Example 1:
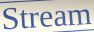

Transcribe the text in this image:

Stream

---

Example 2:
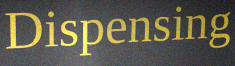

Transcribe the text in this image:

Dispensing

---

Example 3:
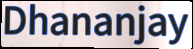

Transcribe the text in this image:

Dhananjay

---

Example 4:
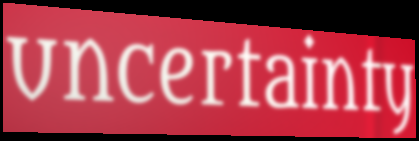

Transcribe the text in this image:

uncertainty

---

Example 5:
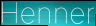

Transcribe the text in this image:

Henner